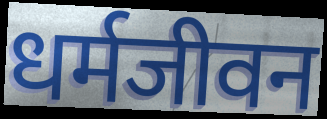
धर्मजीवन